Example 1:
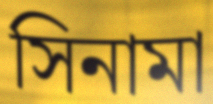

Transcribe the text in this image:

সিনামা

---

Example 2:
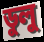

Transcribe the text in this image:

ডুলু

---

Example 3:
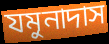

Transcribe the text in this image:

যমুনাদাস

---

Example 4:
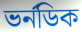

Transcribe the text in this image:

ভর্নডিক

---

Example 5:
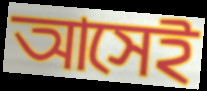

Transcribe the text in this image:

আসেই